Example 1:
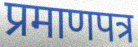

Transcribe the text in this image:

प्रमाणपत्र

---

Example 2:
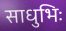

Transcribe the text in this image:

साधुभिः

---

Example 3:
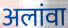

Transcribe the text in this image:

अलांवा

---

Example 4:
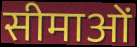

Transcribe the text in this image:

सीमाओं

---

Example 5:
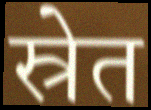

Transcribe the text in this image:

स्रेत